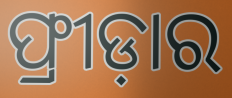
ଫ୍ରୀଡ଼ାର